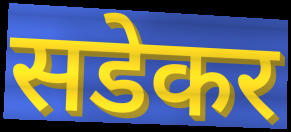
सडेकर